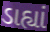
ડાહ્યાં